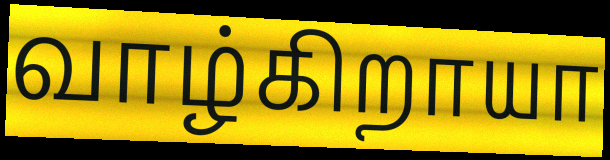
வாழ்கிறாயா